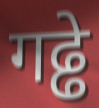
गढ्ढे